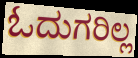
ಓದುಗರಿಲ್ಲ